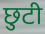
छुटी